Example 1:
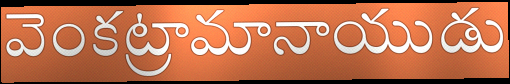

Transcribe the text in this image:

వెంకట్రామానాయుడు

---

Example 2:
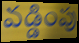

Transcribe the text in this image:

వడ్డింపు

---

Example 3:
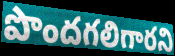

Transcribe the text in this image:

పొందగలిగారని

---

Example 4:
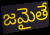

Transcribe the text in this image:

జమైతే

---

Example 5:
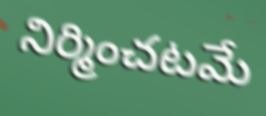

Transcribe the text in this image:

నిర్మించటమే